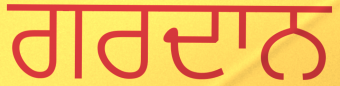
ਗਰਦਾਨ